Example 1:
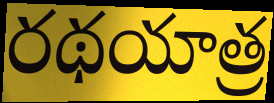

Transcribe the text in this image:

రథయాత్ర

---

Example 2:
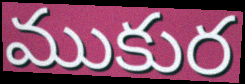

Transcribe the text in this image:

ముకుర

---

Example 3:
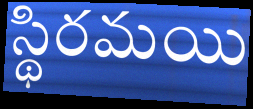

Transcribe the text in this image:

స్థిరమయి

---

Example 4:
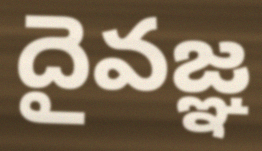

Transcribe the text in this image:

దైవజ్ఞ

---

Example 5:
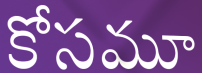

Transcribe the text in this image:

కోసమూ